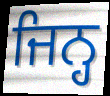
ਜਿਨ੍ਹ